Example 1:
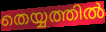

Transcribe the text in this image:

തെയ്യത്തിൽ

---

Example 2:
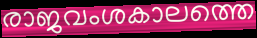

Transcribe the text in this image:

രാജവംശകാലത്തെ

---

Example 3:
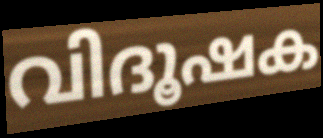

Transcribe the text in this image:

വിദൂഷക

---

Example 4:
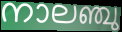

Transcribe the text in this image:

നാലഞ്ചു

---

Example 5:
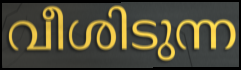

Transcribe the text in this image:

വീശിടുന്ന